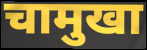
चामुखा